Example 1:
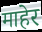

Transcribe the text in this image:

माहेर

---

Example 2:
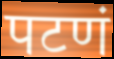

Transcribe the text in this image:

पटणं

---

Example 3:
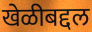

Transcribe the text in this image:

खेळीबद्दल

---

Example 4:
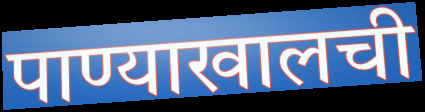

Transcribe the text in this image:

पाण्याखालची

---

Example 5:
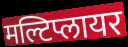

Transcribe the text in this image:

मल्टिप्लायर